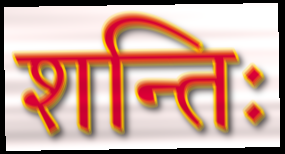
शन्तिः